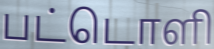
பட்டொளி